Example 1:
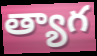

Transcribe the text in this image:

త్యాగ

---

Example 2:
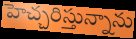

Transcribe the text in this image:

హెచ్చరిస్తున్నాను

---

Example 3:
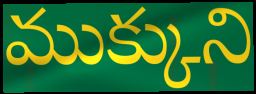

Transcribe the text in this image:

ముక్కుని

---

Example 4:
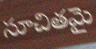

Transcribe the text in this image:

సూచితమై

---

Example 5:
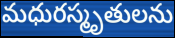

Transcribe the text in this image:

మధురస్మృతులను